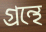
গ্রন্থে